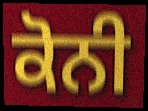
ਕੋਨੀ